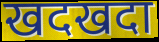
खदखदा